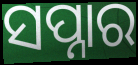
ସପ୍ନାର